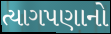
ત્યાગપણાનો